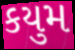
કયુમ